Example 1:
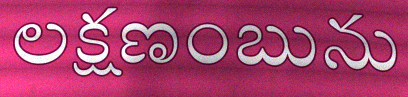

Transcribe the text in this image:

లక్షణంబును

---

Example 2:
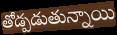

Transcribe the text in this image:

తోడ్పడుతున్నాయి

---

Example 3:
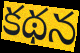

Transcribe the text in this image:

కథన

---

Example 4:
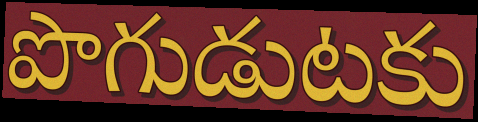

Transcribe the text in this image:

పొగుడుటకు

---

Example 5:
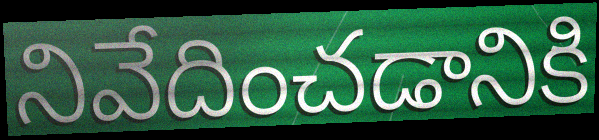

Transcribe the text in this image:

నివేదించడానికి